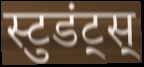
स्टुडंट्स्